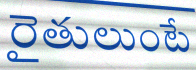
రైతులుంటే